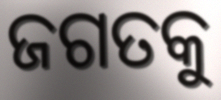
ଜଗତକୁ